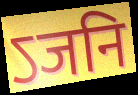
ऽजनि